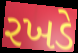
રખડે